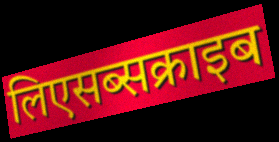
लिएसब्सक्राइब